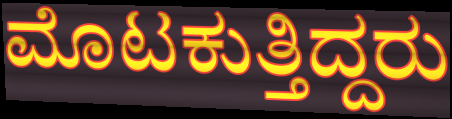
ಮೊಟಕುತ್ತಿದ್ದರು